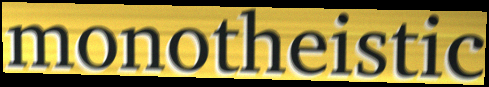
monotheistic